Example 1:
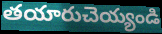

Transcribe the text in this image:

తయారుచెయ్యండి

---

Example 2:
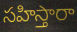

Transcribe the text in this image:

సహిస్తారా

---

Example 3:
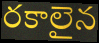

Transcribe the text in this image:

రకాలైన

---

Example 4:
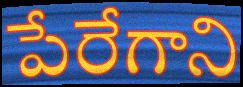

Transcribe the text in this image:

పేరేగాని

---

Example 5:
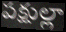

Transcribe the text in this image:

పక్షుల్లా